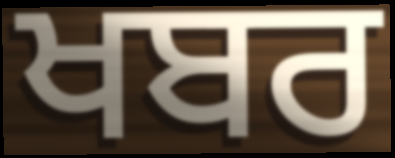
ਖਬਰ